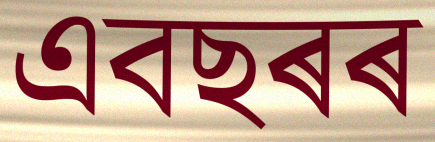
এবছৰৰ